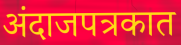
अंदाजपत्रकात